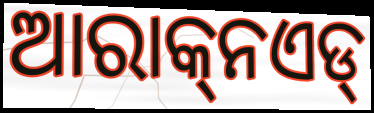
ଆରାକ୍‌ନଏଡ୍